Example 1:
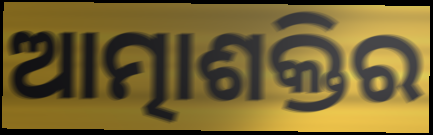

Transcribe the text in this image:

ଆତ୍ମାଶକ୍ତିର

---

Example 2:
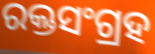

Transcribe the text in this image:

ରକ୍ତସଂଗ୍ରହ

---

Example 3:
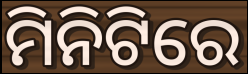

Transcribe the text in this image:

ମିନିଟିରେ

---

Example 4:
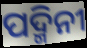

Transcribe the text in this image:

ପଦ୍ମିନୀ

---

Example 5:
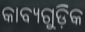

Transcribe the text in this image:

କାବ୍ୟଗୁଡ଼ିକ